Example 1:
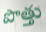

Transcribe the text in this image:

పొత్తు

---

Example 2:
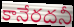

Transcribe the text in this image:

కానేరదనీ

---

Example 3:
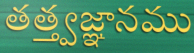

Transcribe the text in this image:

తత్త్వజ్ఞానము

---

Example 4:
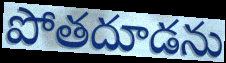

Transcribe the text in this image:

పోతదూడను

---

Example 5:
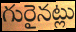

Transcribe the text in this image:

గురైనట్లు